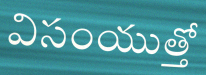
విసంయుత్తో